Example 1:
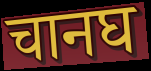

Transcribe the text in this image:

चानघ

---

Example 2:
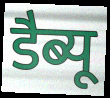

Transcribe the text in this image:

डैब्यू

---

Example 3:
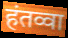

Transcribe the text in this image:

हंतव्वा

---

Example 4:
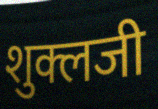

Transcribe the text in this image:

शुक्‍लजी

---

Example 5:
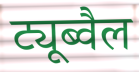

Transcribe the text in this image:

ट्यूब्वैल